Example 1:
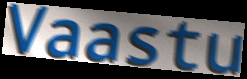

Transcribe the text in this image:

Vaastu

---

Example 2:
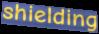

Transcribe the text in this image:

shielding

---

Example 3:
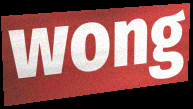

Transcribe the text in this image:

wong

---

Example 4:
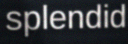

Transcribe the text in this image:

splendid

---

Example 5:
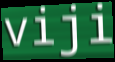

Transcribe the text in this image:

viji